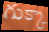
గుక్కా